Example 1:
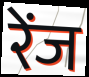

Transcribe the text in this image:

रेंज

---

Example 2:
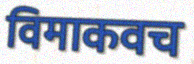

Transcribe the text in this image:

विमाकवच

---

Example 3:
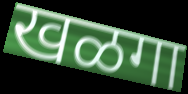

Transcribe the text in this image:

खळगा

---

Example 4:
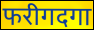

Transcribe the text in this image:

फरीगदगा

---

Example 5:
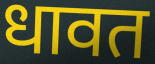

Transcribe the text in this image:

धावत